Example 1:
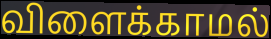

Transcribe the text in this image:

விளைக்காமல்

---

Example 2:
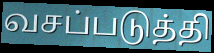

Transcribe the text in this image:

வசப்படுத்தி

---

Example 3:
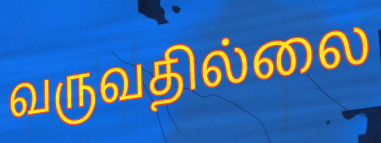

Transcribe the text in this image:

வருவதில்லை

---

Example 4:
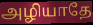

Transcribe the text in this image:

அழியாதே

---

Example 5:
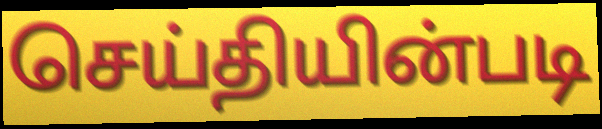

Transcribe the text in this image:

செய்தியின்படி